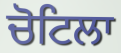
ਚੋਟਿਲਾ